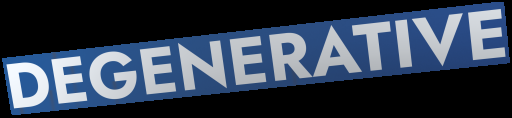
DEGENERATIVE